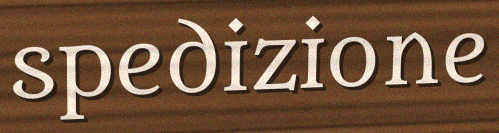
spedizione